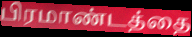
பிரமாண்டத்தை